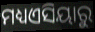
ମଧ୍ୟଏସିୟାରୁ